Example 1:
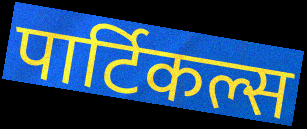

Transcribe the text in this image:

पार्टिकल्‍स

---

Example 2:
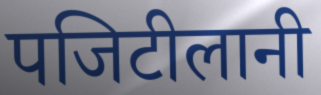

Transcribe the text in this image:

पजिटीलानी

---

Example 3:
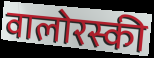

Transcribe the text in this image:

वालोरस्की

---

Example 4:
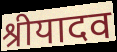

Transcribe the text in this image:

श्रीयादव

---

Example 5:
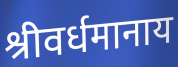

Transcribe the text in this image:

श्रीवर्धमानाय